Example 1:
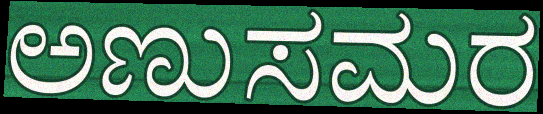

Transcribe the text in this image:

ಅಣುಸಮರ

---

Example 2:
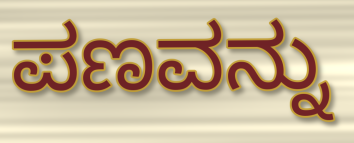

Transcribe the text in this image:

ಪಣವನ್ನು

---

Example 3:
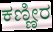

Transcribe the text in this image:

ಕಣ್ಣೀರ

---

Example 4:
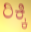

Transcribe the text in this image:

ರಿಕ್ಕಿ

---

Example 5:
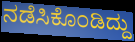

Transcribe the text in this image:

ನಡೆಸಿಕೊಂಡಿದ್ದು